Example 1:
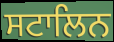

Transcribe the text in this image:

ਸਟਾਲਿਨ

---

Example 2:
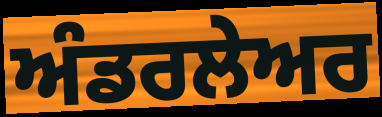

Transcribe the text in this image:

ਅੰਡਰਲੇਅਰ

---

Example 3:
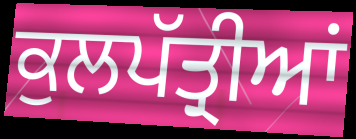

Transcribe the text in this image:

ਕੁਲਪੱਤ੍ਰੀਆਂ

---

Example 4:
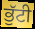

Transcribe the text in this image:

ਭੁੱਟੀ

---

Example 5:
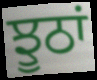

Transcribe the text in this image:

ਝੂਠਾਂ